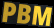
PBM